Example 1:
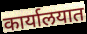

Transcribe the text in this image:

कार्यालयात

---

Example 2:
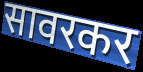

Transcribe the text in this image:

सावरकर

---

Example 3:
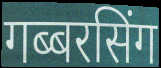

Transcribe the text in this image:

गब्बरसिंग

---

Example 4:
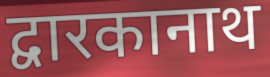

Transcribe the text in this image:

द्वारकानाथ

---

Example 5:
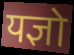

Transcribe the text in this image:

यज्ञो